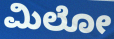
ಮಿಲೋ